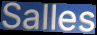
Salles